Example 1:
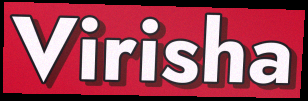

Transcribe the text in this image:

Virisha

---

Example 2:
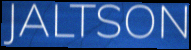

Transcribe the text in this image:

JALTSON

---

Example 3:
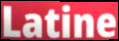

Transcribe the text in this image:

Latine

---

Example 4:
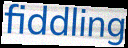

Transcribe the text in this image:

fiddling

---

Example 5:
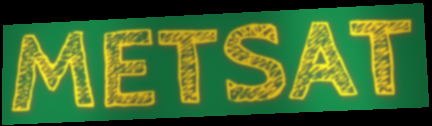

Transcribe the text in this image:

METSAT